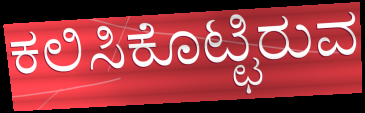
ಕಲಿಸಿಕೊಟ್ಟಿರುವ